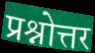
प्रश्नोत्तर